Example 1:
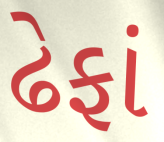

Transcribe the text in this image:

ઢેફાં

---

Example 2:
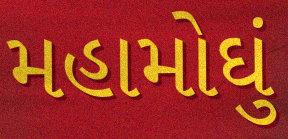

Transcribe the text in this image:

મહામોઘું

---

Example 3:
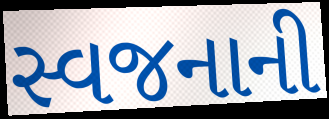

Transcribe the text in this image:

સ્વજનાની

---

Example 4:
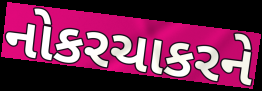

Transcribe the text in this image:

નોકરચાકરને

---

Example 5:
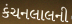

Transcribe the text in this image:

કંચનલાલની